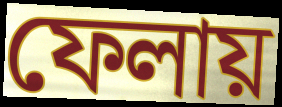
ফেলায়